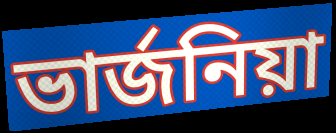
ভাৰ্জনিয়া